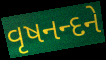
વૃષનન્દને